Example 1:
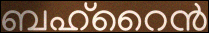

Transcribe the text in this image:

ബഹ്റൈൻ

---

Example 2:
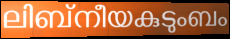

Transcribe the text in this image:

ലിബ്നീയകുടുംബം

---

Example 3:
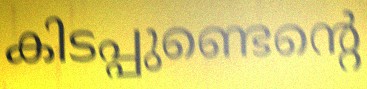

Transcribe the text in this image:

കിടപ്പുണ്ടെന്റെ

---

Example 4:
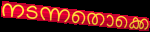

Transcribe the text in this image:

നടന്നതൊക്കെ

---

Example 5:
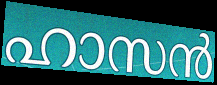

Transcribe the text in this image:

ഹാസൻ